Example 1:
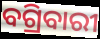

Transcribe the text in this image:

ବଗ୍ରିବାରୀ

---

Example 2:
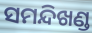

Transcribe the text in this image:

ସମନ୍ଦିଖଣ୍ଡ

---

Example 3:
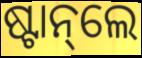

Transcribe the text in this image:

ଷ୍ଟାନ୍‌ଲେ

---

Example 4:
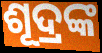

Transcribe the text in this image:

ଶୂଦ୍ରଙ୍କ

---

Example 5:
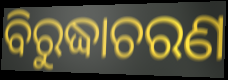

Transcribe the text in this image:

ବିରୁଦ୍ଧାଚରଣ